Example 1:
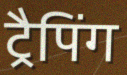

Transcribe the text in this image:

ट्रैपिंग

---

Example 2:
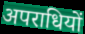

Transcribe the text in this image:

अपराधियों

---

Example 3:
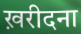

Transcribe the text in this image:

ख़रीदना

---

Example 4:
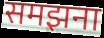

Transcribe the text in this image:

समझना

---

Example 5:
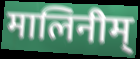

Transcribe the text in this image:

मालिनीम्